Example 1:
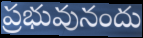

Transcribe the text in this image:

ప్రభువునందు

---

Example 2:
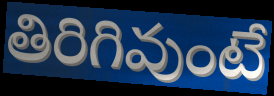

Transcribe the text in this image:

తిరిగివుంటే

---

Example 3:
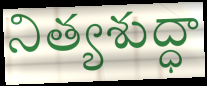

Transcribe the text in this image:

నిత్యశుద్ధా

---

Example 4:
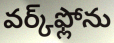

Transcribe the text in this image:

వర్క్‌ఫ్లోను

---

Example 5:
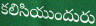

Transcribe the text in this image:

కలిసియుందురు